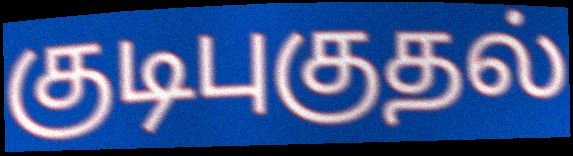
குடிபுகுதல்